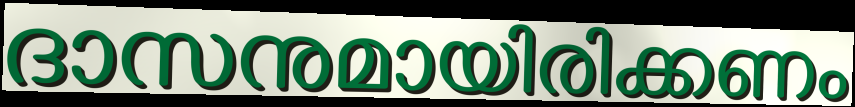
ദാസനുമായിരിക്കണം